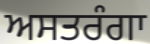
ਅਸਤਰੰਗਾ